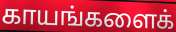
காயங்களைக்